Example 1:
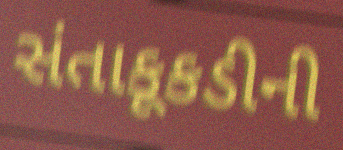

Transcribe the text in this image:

સંતાકૂકડીની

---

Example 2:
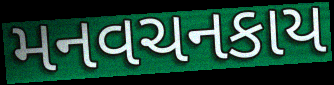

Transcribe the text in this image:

મનવચનકાય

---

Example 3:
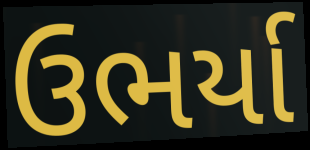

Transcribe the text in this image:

ઉભર્યા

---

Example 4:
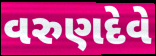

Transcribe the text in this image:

વરુણદેવે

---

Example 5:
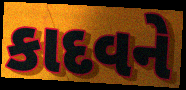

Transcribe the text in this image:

કાદવને